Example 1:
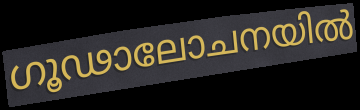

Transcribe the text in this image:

ഗൂഢാലോചനയിൽ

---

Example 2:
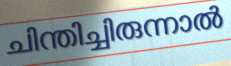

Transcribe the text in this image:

ചിന്തിച്ചിരുന്നാൽ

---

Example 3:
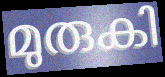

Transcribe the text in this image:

മുരുകി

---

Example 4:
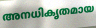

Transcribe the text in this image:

അനധികൃതമായ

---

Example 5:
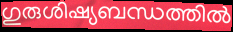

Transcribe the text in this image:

ഗുരുശിഷ്യബന്ധത്തിൽ